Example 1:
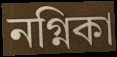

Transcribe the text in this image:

নগ্নিকা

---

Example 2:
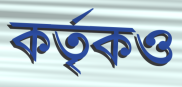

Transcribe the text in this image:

কর্তৃকও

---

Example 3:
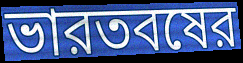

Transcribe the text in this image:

ভারতবষের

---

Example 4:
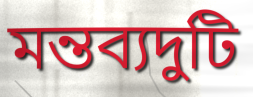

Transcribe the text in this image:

মন্তব্যদুটি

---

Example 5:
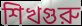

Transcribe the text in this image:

শিখগুরু